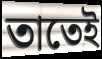
তাতেই